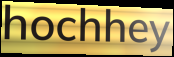
hochhey